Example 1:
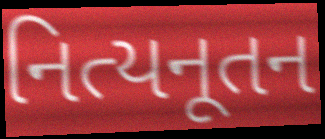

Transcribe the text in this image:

નિત્યનૂતન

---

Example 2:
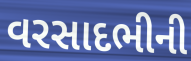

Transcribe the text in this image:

વરસાદભીની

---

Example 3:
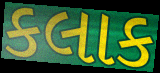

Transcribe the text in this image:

કલાક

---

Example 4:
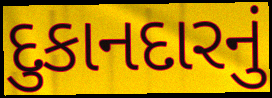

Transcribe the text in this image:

દુકાનદારનું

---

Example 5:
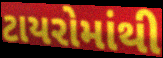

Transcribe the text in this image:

ટાયરોમાંથી